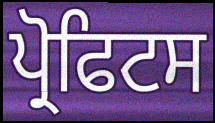
ਪ੍ਰੋਫਿਟਸ